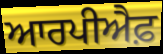
ਆਰਪੀਐਫ਼